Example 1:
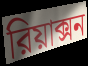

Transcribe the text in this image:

রিয়াক্সন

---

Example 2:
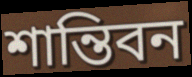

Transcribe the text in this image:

শান্তিবন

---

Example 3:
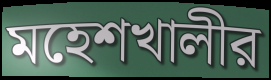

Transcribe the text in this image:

মহেশখালীর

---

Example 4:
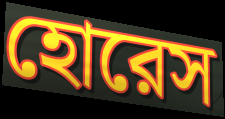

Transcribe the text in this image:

হোরেস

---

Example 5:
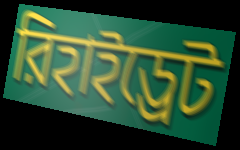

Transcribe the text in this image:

রিহাইড্রেট